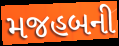
મજહબની